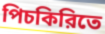
পিচকিরিতে